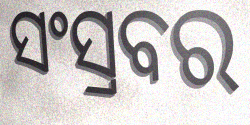
ସଂସ୍ରବର